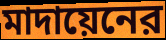
মাদায়েনের